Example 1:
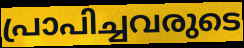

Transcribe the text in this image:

പ്രാപിച്ചവരുടെ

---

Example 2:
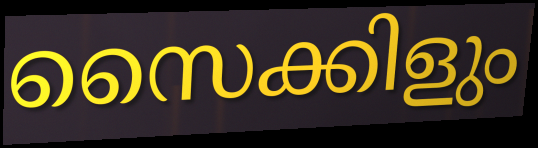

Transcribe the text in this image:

സൈക്കിളും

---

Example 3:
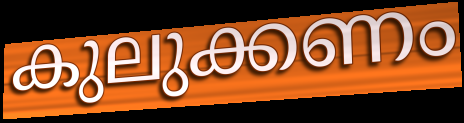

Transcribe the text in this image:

കുലുക്കണം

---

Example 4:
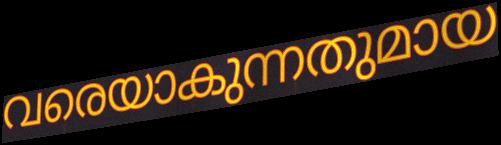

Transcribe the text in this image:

വരെയാകുന്നതുമായ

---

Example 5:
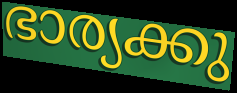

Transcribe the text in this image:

ഭാര്യക്കു